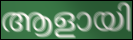
ആളായി